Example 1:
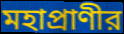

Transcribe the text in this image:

মহাপ্রাণীর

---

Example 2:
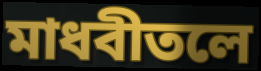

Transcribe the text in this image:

মাধবীতলে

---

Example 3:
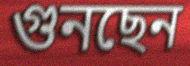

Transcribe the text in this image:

গুনছেন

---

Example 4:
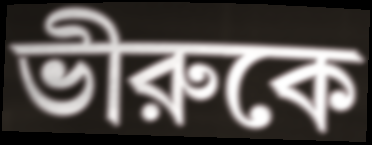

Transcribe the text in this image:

ভীরুকে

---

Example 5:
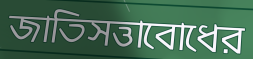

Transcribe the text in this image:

জাতিসত্তাবোধের